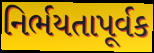
નિર્ભયતાપૂર્વક